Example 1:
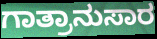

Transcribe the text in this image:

ಗಾತ್ರಾನುಸಾರ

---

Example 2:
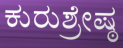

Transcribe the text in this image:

ಕುರುಶ್ರೇಷ್ಠ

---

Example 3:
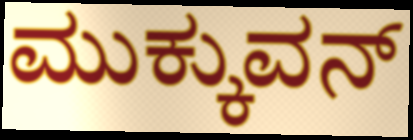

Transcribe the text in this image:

ಮುಕ್ಕುವನ್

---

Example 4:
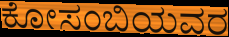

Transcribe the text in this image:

ಕೋಸಂಬಿಯವರ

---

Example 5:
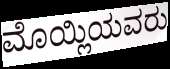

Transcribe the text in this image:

ಮೊಯ್ಲಿಯವರು